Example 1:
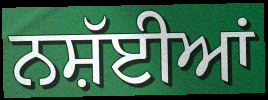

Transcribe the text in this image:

ਨਸ਼ੱਈਆਂ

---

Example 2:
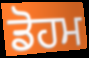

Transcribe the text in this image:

ਡੋਹਮ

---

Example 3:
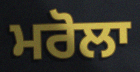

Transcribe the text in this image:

ਮਰੋਲਾ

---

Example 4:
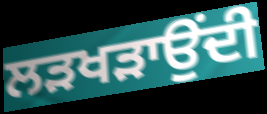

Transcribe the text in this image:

ਲੜਖੜਾਉਂਦੀ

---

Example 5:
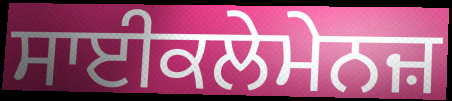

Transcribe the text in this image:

ਸਾਈਕਲੇਮੇਨਜ਼